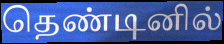
தெண்டினில்